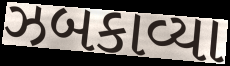
ઝબકાવ્યા